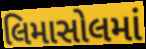
લિમાસોલમાં